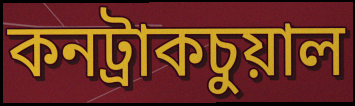
কনট্রাকচুয়াল